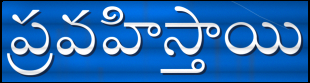
ప్రవహిస్తాయి